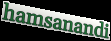
hamsanandi